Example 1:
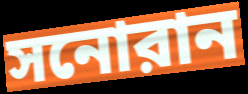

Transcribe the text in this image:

সনোরান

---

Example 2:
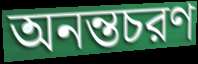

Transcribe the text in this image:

অনন্তচরণ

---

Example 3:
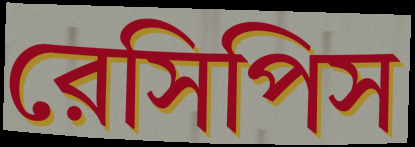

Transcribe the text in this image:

রেসিপিস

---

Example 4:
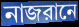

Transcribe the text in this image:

নাজরানে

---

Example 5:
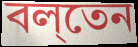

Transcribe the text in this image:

বল্তেন